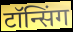
टॉन्सिंग